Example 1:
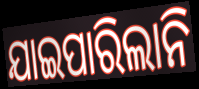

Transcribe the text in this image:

ଯାଇପାରିଲାନି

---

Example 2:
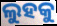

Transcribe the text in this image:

ଲୁହକୁ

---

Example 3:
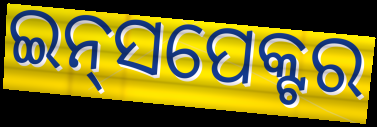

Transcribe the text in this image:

ଇନ୍‌ସପେକ୍ଟର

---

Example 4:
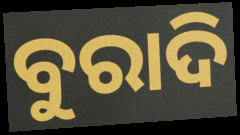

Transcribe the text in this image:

ବୁରାଦି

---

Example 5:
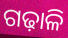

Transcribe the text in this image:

ଗଢ଼ାଳି